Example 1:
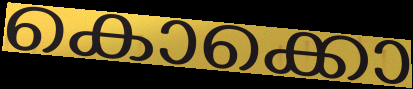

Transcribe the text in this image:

കൊക്കൊ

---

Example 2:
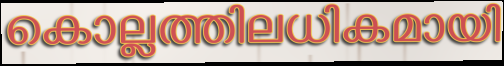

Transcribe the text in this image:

കൊല്ലത്തിലധികമായി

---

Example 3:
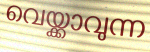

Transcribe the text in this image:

വെയ്ക്കാവുന്ന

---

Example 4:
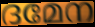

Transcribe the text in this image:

ദമേന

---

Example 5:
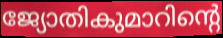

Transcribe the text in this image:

ജ്യോതികുമാറിന്റെ